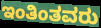
ಇಂತಿಂತವರು